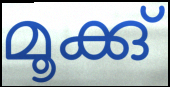
മൂക്കു്